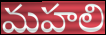
మహలి